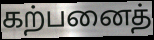
கற்பனைத்